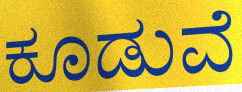
ಕೂಡುವೆ